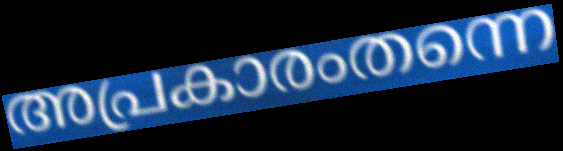
അപ്രകാരംതന്നെ